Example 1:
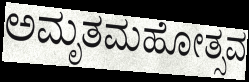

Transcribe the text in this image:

ಅಮೃತಮಹೋತ್ಸವ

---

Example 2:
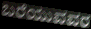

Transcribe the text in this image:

ಬರೆಯುವವರ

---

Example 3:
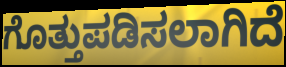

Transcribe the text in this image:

ಗೊತ್ತುಪಡಿಸಲಾಗಿದೆ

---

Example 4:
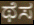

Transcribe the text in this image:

ಥೆಸ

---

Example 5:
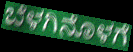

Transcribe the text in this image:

ಬೆಳಗಿನೊಳಗೆ